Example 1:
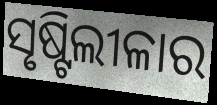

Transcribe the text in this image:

ସୃଷ୍ଟିଲୀଳାର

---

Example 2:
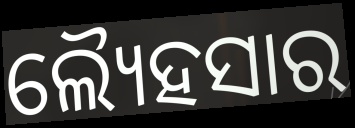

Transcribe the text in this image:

ଲ୍ୟୈହସାର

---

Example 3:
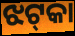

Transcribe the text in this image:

ଝଟ୍‍କା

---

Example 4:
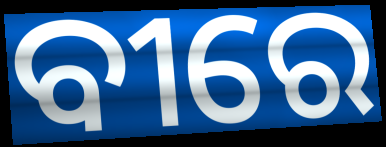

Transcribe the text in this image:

ବୀରେ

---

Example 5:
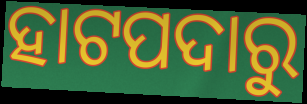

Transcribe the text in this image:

ହାଟପଦାରୁ